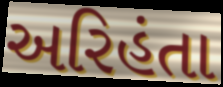
અરિહંતા